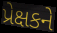
પ્રેક્ષકને